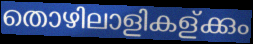
തൊഴിലാളികള്ക്കും